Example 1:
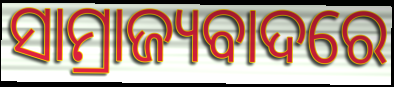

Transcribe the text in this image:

ସାମ୍ରାଜ୍ୟବାଦରେ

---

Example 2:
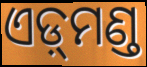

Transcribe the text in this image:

ଏଡ଼୍‌ମଣ୍ଡ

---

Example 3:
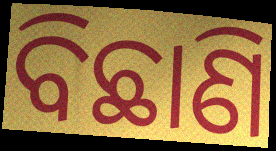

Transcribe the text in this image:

ବିଛାଣି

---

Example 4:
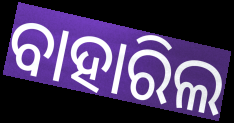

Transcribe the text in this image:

ବାହାରିଲ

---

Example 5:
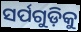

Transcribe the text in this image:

ସର୍ପଗୁଡ଼ିକୁ